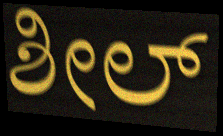
ಶೀಲ್